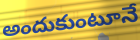
అందుకుంటూనే